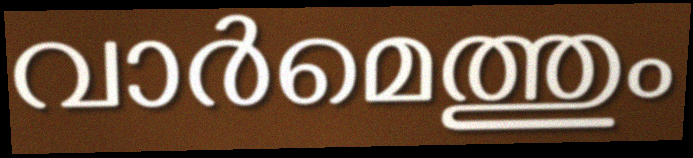
വാർമെത്തും